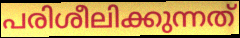
പരിശീലിക്കുന്നത്